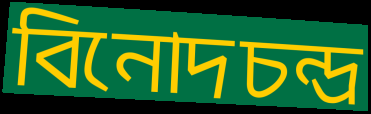
বিনোদচন্দ্র